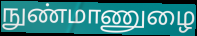
நுண்மாணுழை